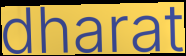
dharat